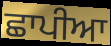
ਛਾਪੀਆ